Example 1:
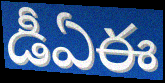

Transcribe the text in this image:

డీఏఈ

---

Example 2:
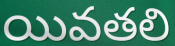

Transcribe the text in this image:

యివతలి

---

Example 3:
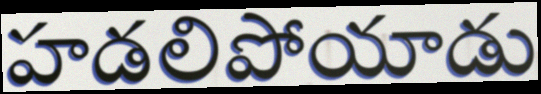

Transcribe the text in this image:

హడలిపోయాడు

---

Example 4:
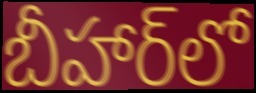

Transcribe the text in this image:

బీహార్‌లో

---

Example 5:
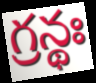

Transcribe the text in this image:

గ్రన్థః